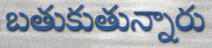
బతుకుతున్నారు